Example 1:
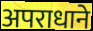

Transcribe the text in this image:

अपराधाने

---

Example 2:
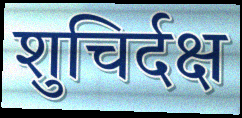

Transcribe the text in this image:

शुचिर्दक्ष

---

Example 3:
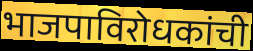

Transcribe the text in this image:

भाजपाविरोधकांची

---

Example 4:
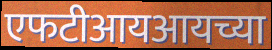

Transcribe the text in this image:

एफटीआयआयच्या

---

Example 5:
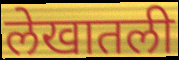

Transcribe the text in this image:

लेखातली